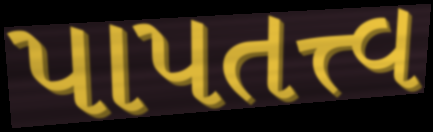
પાપતત્ત્વ